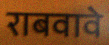
राबवावे